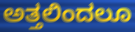
ಅತ್ತಲಿಂದಲೂ